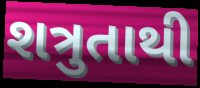
શત્રુતાથી